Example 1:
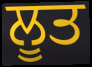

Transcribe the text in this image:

ਲੂਤ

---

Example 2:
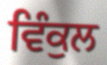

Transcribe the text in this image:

ਵਿੰਕੁਲ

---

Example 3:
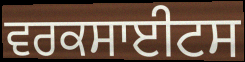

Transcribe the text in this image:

ਵਰਕਸਾਈਟਸ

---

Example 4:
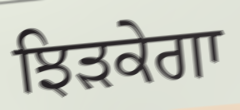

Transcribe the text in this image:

ਝਿੜਕੇਗਾ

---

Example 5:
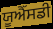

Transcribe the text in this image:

ਯੂਐੱਸਡੀ